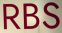
RBS